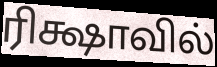
ரிக்ஷாவில்